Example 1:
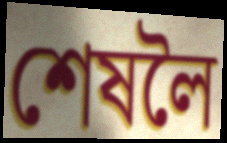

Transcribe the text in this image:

শেষলৈ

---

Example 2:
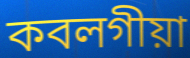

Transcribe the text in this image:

কবলগীয়া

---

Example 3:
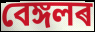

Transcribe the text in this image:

বেঙ্গলৰ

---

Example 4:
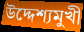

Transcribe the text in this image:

উদ্দেশ্য়মুখী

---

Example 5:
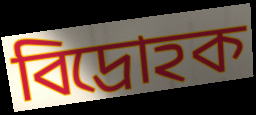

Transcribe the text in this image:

বিদ্ৰোহক